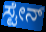
ಸ್ಟೇನ್